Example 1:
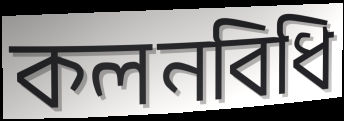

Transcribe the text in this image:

কলনবিধি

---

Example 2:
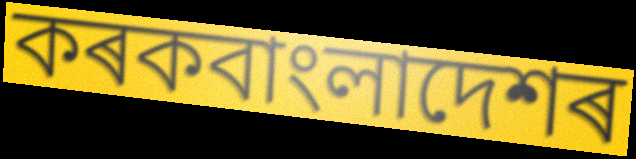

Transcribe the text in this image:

কৰকবাংলাদেশৰ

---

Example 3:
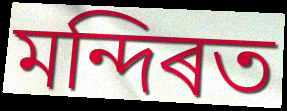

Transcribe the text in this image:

মন্দিৰত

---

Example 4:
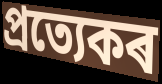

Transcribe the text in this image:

প্ৰত্যেকৰ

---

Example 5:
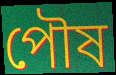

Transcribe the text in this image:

পৌষ